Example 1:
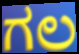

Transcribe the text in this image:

ಗಲ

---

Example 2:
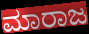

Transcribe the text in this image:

ಮಾರಾಜ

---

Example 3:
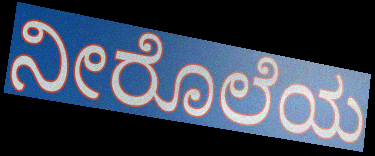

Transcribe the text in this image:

ನೀರೊಲೆಯ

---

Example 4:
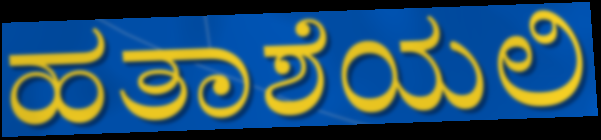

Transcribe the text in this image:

ಹತಾಶೆಯಲಿ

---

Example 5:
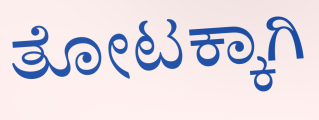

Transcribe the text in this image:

ತೋಟಕ್ಕಾಗಿ